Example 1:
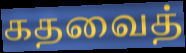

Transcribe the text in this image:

கதவைத்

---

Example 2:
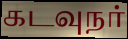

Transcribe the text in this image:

கடவுநர்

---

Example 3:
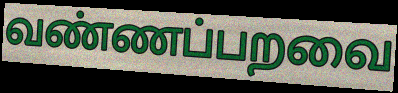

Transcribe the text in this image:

வண்ணப்பறவை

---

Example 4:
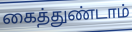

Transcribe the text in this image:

கைத்துண்டாம்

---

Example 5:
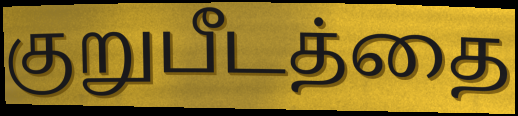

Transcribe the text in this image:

குறுபீடத்தை